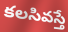
కలసివస్తే